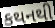
કથનથી